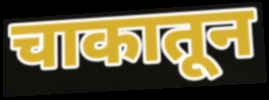
चाकातून